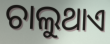
ଚାଲୁଥାଏ